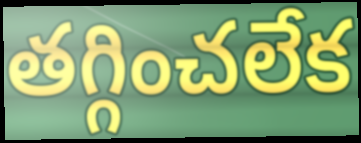
తగ్గించలేక